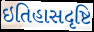
ઇતિહાસદૃષ્ટિ